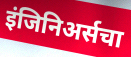
इंजिनिअर्सचा